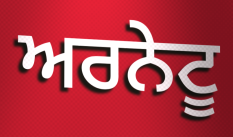
ਅਰਨੇਟੂ